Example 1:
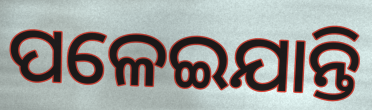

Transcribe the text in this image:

ପଳେଇଯାନ୍ତି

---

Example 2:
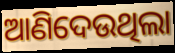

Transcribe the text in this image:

ଆଣିଦେଉଥିଲା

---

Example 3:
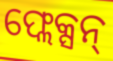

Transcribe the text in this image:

ଫ୍ଲେକ୍ସନ୍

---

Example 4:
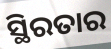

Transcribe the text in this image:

ସ୍ଥିରତାର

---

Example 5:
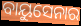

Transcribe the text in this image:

ବାୟୁସେନାର